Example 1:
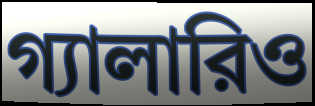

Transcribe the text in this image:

গ্যালারিও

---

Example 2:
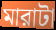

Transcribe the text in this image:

মারাটা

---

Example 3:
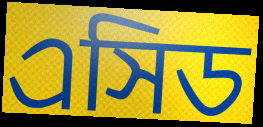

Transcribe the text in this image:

এসিড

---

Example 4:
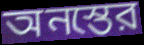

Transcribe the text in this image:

অনস্তের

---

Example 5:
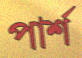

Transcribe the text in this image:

পার্শ